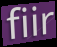
fiir